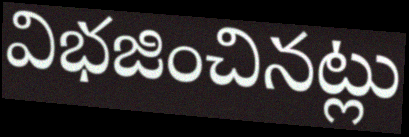
విభజించినట్లు